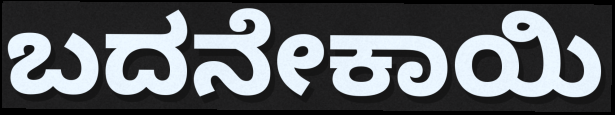
ಬದನೇಕಾಯಿ